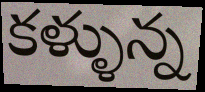
కళ్ళున్న